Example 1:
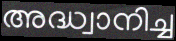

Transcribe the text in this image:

അദ്ധ്വാനിച്ച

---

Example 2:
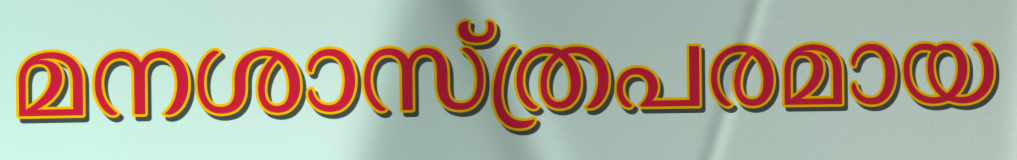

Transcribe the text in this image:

മനശാസ്ത്രപരമായ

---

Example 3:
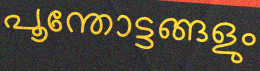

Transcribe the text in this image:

പൂന്തോട്ടങ്ങളും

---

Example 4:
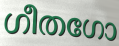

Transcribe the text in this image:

ഗീതഗോ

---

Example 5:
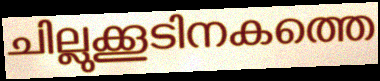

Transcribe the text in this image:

ചില്ലുക്കൂടിനകത്തെ